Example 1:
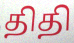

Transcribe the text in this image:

திதி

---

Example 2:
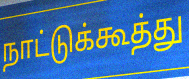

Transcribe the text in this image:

நாட்டுக்கூத்து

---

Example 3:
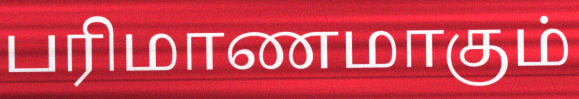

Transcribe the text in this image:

பரிமாணமாகும்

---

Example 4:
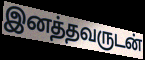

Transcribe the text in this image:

இனத்தவருடன்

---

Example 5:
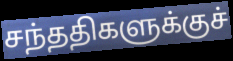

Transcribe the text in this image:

சந்ததிகளுக்குச்